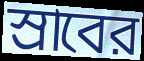
স্রাবের